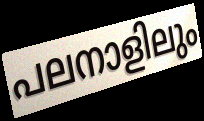
പലനാളിലും